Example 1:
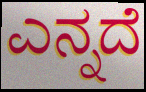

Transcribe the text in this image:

ಎನ್ನದೆ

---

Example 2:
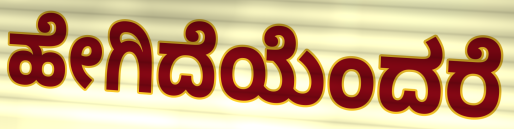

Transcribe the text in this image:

ಹೇಗಿದೆಯೆಂದರೆ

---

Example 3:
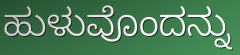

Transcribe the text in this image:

ಹುಳುವೊಂದನ್ನು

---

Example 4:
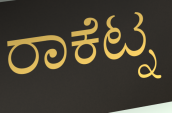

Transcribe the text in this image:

ರಾಕೆಟ್ನ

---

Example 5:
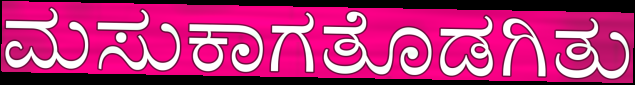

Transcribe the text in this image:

ಮಸುಕಾಗತೊಡಗಿತು